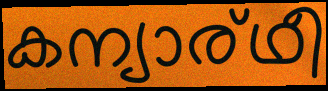
കന്യാര്ഥീ